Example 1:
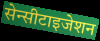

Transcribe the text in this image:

सेन्सीटाइजेशन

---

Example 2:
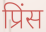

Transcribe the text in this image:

प्रिंस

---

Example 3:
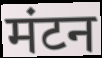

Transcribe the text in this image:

मंटन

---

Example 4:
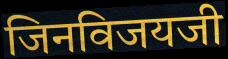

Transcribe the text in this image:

जिनविजयजी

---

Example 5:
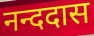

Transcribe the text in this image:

नन्ददास